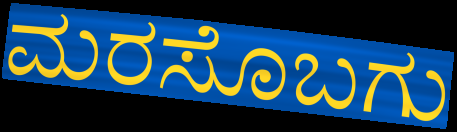
ಮರಸೊಬಗು